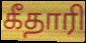
கீதாரி